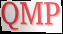
QMP